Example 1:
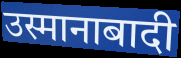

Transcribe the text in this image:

उस्मानाबादी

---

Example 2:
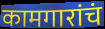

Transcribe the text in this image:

कामगारांचं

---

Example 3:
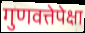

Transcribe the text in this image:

गुणवत्तेपेक्षा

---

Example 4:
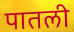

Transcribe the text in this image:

पातली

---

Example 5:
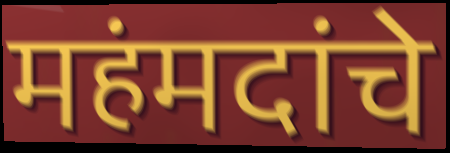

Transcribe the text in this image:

महंमदांचे